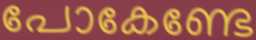
പോകേണ്ടേ